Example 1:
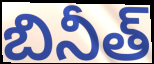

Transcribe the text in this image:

బినీత్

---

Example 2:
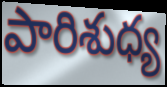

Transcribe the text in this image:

పారిశుధ్య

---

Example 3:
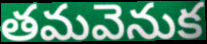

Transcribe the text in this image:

తమవెనుక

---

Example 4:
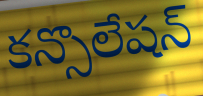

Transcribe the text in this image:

కన్సొలేషన్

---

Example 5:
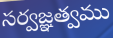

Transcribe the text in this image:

సర్వజ్ఞత్వము